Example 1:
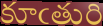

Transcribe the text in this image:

కూఁతురి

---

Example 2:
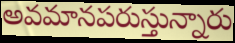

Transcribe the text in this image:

అవమానపరుస్తున్నారు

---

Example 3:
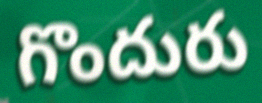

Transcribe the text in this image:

గొందురు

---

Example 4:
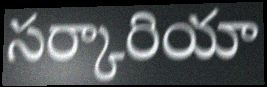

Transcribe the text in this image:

సర్కారియా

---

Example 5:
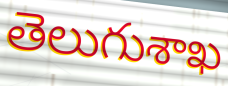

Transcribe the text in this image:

తెలుగుశాఖ